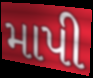
માપી